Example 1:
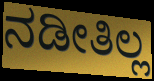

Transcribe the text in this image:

ನಡೀತಿಲ್ಲ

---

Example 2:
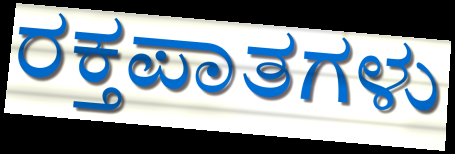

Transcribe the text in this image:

ರಕ್ತಪಾತಗಳು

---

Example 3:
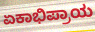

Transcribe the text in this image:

ಏಕಾಭಿಪ್ರಾಯ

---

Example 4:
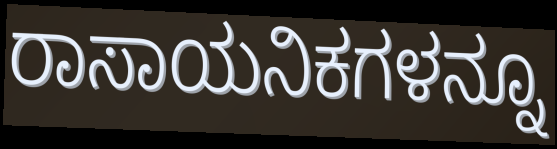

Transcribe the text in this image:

ರಾಸಾಯನಿಕಗಳನ್ನೂ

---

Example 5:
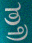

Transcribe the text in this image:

ತ್ತ್ರ